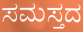
ಸಮಸ್ತದ